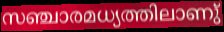
സഞ്ചാരമധ്യത്തിലാണു്